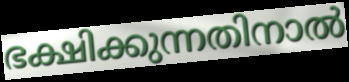
ഭക്ഷിക്കുന്നതിനാൽ